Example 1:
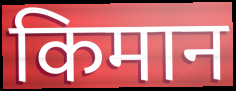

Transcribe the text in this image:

किमान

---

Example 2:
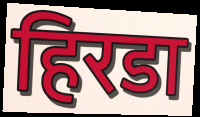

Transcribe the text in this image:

हिरडा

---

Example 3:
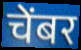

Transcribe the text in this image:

चेंबर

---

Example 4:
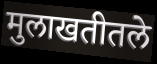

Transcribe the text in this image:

मुलाखतीतले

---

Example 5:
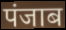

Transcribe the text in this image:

पंजाब